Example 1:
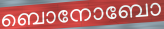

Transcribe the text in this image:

ബൊനോബോ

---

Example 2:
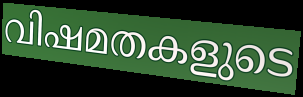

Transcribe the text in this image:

വിഷമതകളുടെ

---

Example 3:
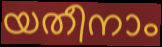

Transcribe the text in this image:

യതീനാം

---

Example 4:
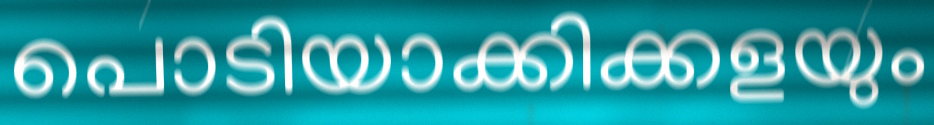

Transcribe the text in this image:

പൊടിയാക്കിക്കളയും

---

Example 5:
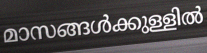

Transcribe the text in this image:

മാസങ്ങൾക്കുള്ളിൽ